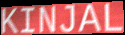
KINJAL